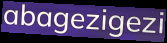
abagezigezi